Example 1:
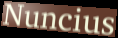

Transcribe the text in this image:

Nuncius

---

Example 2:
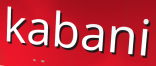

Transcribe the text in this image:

kabani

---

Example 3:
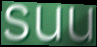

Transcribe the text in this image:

suu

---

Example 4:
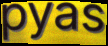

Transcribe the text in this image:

pyas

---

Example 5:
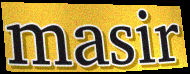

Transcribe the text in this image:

masir